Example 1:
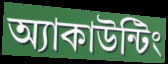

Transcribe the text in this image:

অ্যাকাউন্টিং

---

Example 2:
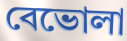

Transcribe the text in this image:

বেভোলা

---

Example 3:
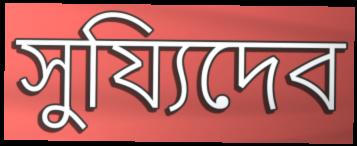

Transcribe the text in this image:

সুয্যিদেব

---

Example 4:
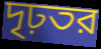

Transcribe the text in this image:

দৃঢ়তর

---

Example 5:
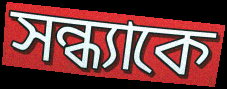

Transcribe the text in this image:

সন্ধ্যাকে